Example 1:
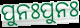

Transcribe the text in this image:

ପୁନଃପୁନଃ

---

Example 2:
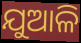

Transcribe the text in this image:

ଯୁଆଳି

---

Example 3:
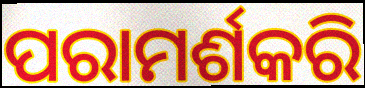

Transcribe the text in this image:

ପରାମର୍ଶକରି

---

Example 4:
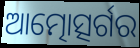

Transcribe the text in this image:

ଆତ୍ମୋତ୍ସର୍ଗର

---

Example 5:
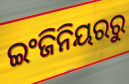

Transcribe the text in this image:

ଇଂଜିନିୟରରୁ